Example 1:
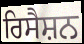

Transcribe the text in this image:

ਰਿਸੈਸ਼ਨ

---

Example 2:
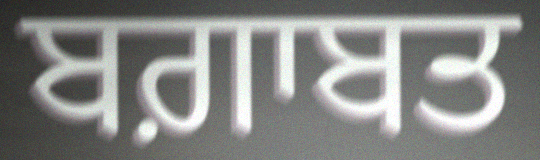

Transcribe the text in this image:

ਬਗ਼ਾਬਤ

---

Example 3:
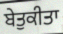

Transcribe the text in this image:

ਬੇਤੁਕੀਤਾ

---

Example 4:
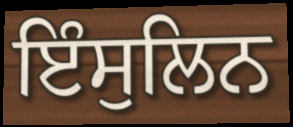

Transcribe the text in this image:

ਇੰਸੁਲਿਨ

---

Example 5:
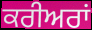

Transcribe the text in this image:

ਕਰੀਅਰਾਂ